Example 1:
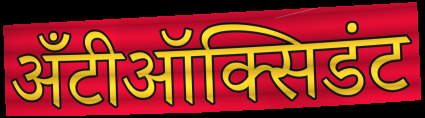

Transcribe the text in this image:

अँटीऑक्सिडंट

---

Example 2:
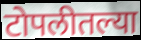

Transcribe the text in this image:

टोपलीतल्या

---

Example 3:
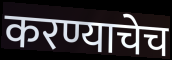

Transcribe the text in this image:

करण्याचेच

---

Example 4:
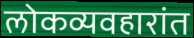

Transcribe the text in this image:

लोकव्यवहारांत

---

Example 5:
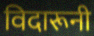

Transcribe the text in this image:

विदारूनी